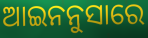
ଆଇନନୁସାରେ